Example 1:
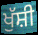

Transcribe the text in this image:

ਖੁੱਸ਼ੀ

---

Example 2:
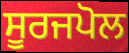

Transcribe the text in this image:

ਸੂਰਜਪੋਲ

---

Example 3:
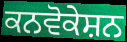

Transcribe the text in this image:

ਕਨਵੋਕੇਸ਼ਨ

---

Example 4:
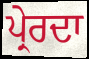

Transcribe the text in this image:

ਪ੍ਰੇਰਦਾ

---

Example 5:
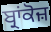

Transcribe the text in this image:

ਬ੍ਰਾਂਕੋਜ਼